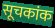
सूचकांक